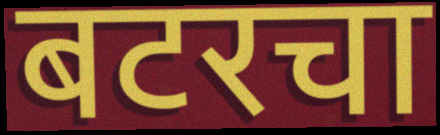
बटरचा